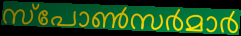
സ്പോൺസർമാർ